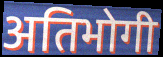
अतिभोगी